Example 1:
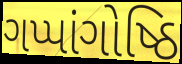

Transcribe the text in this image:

ગપ્પાંગોષ્ઠિ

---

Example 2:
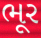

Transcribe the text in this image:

ભૂર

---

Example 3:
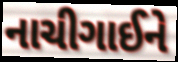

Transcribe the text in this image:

નાચીગાઈને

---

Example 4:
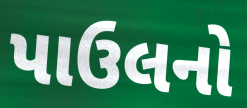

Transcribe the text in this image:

પાઉલનો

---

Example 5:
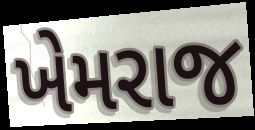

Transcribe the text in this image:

ખેમરાજ